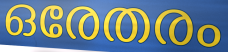
ഒരേതരം